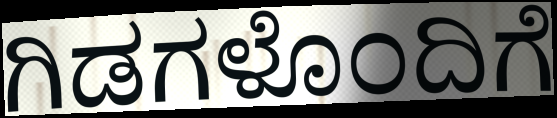
ಗಿಡಗಳೊಂದಿಗೆ